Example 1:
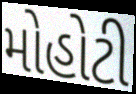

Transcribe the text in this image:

મોહોટી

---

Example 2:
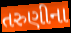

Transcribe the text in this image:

તરુણીના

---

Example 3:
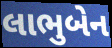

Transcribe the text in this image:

લાભુબેન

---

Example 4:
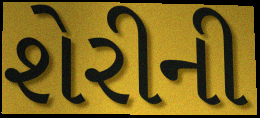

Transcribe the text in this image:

શેરીની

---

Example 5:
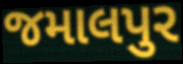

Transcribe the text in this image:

જમાલપુર